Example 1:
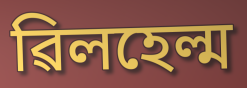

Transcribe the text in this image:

ৱিলহেল্ম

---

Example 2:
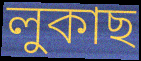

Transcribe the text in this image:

লুকাছ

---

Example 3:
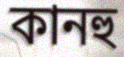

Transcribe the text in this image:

কানহু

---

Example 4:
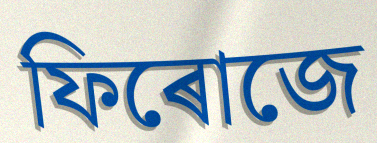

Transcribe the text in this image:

ফিৰোজে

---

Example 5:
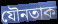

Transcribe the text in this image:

যৌনতাক